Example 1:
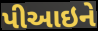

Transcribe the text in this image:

પીઆઇને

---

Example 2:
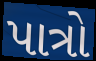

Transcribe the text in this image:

પાત્રો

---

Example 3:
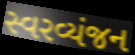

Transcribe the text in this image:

સ્વરવ્યંજન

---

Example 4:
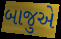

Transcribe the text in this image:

બાજુએ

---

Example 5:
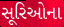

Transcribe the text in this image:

સૂરિઓના